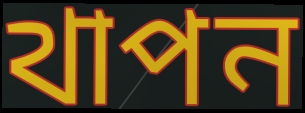
থাপন